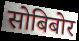
सोबिबोर